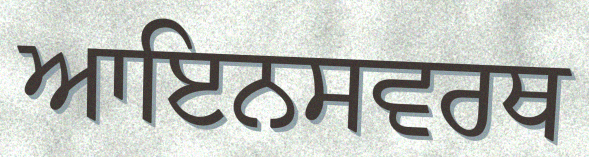
ਆਇਨਸਵਰਥ